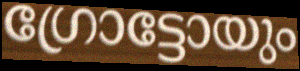
ഗ്രോട്ടോയും